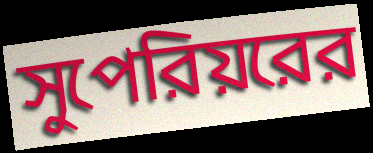
সুপেরিয়রের